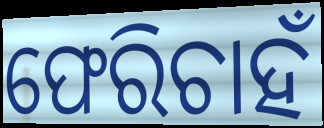
ଫେରିଚାହଁ